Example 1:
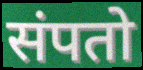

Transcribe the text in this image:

संपतो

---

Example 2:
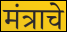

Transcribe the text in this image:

मंत्राचे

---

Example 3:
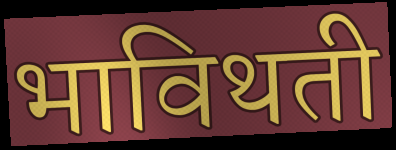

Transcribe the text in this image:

भाविथती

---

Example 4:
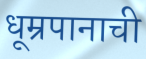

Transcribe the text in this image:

धूम्रपानाची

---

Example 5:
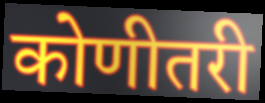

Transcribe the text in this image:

कोणीतरी